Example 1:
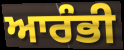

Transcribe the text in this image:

ਆਰੰਭੀ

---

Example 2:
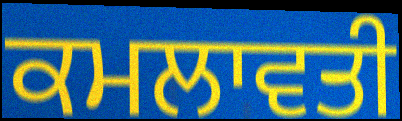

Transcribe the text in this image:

ਕਮਲਾਵਤੀ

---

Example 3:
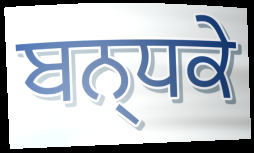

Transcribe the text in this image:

ਬਨ੍ਧਕੇ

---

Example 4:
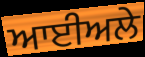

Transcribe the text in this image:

ਆਈਅਲੇ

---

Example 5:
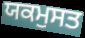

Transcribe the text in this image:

ਯਕਮੁਸਤ